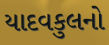
યાદવકુલનો